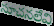
సూచనలేవి